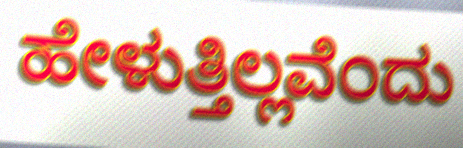
ಹೇಳುತ್ತಿಲ್ಲವೆಂದು